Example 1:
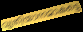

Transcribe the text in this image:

വ്യതിയാനമാകട്ടെ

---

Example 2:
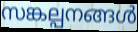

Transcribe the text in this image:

സങ്കല്പനങ്ങൾ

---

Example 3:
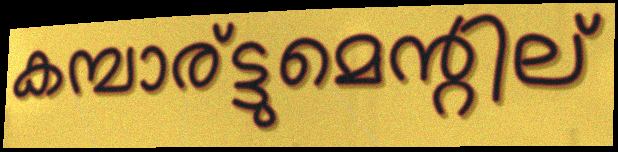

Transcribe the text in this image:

കമ്പാര്ട്ടുമെന്റില്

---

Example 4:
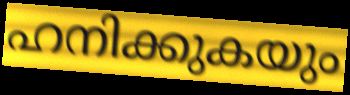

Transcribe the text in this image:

ഹനിക്കുകയും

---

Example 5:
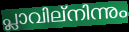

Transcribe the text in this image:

പ്ലാവില്നിന്നും